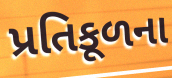
પ્રતિકૂળના